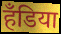
हँडिया